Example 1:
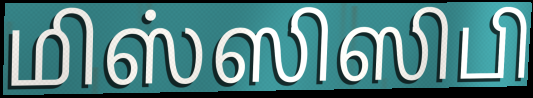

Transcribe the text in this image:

மிஸ்ஸிஸிபி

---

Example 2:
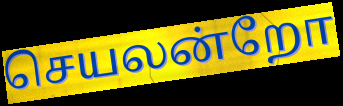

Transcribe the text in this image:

செயலன்றோ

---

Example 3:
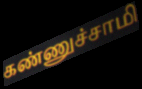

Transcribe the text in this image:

கண்ணுச்சாமி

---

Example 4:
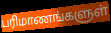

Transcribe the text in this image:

பரிமாணங்களுள்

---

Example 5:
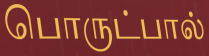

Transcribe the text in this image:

பொருட்பால்